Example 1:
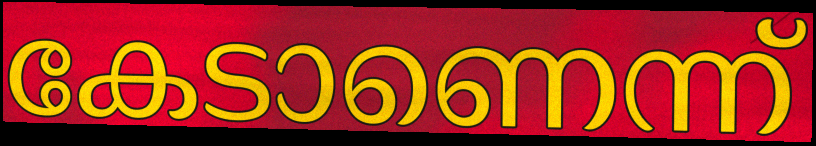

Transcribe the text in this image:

കേടാണെന്ന്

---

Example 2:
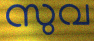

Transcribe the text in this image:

സുവ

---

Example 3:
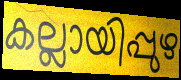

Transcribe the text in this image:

കല്ലായിപ്പുഴ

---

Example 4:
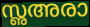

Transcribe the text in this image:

സൢഅരാ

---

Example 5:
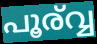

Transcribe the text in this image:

പൂര്വ്വ